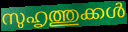
സുഹൃത്തുക്കൾ